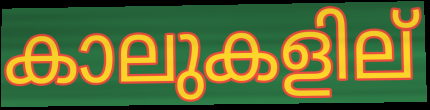
കാലുകളില്